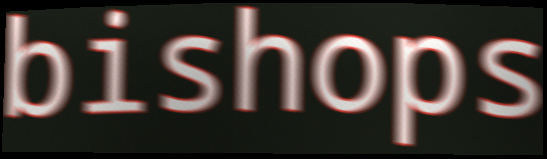
bishops